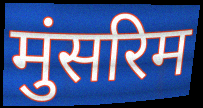
मुंसरिम